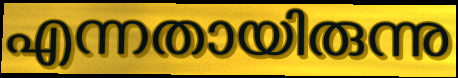
എന്നതായിരുന്നു